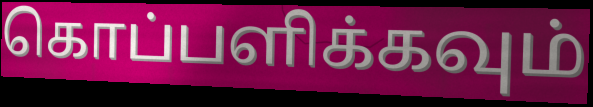
கொப்பளிக்கவும்